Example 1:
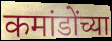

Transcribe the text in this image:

कमांडोंच्या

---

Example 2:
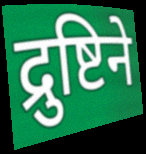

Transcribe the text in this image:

द्रुष्टिने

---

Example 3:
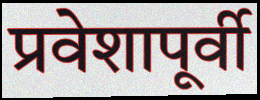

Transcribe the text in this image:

प्रवेशापूर्वी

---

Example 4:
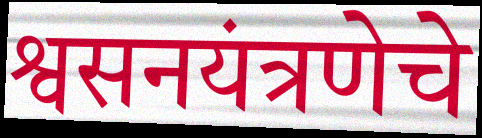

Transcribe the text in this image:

श्वसनयंत्रणेचे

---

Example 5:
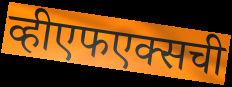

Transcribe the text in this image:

व्हीएफएक्सची